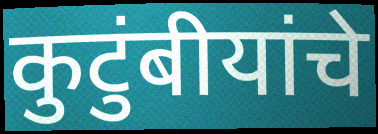
कुटुंबीयांचे